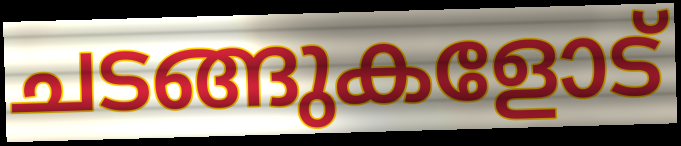
ചടങ്ങുകളോട്